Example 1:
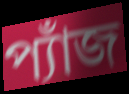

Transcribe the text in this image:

প্যাঁজ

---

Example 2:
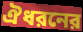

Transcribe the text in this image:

ঐধরনের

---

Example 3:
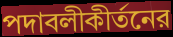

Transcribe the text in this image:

পদাবলীকীর্তনের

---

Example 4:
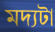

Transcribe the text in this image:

মদ্যটা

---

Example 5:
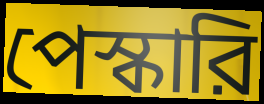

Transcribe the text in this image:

পেস্কারি